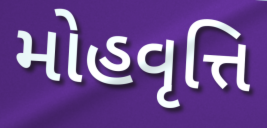
મોહવૃત્તિ